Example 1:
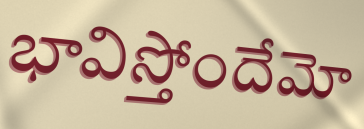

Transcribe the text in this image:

భావిస్తోందేమో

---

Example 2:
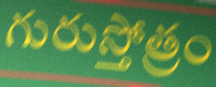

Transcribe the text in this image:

గురుస్తోత్రం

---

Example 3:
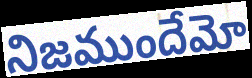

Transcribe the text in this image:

నిజముందేమో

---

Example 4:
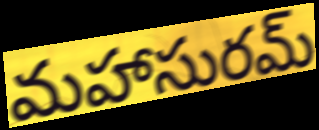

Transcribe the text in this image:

మహాసురమ్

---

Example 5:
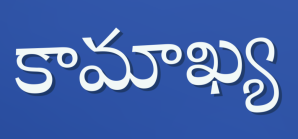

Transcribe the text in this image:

కామాఖ్య